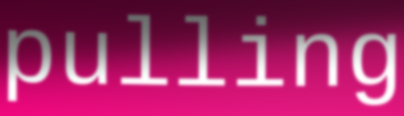
pulling